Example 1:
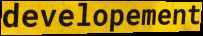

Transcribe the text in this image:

developement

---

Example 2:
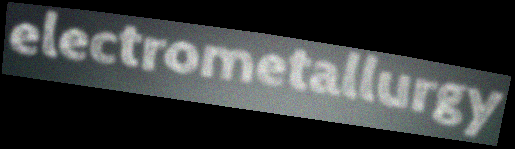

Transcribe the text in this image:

electrometallurgy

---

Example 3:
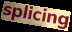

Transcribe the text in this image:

splicing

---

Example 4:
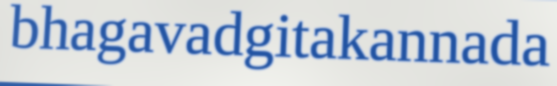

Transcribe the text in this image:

bhagavadgitakannada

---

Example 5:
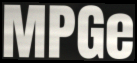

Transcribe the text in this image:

MPGe